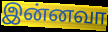
இன்னவா